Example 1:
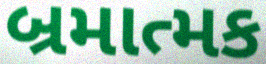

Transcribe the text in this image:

બ્રમાત્મક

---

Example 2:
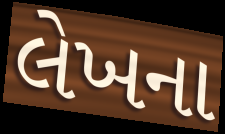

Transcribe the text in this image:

લેખના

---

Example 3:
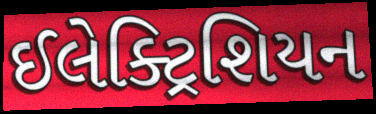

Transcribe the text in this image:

ઈલેક્ટ્રિશિયન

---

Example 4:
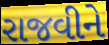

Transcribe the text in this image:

રાજવીને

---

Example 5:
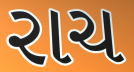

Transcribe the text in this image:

રાચ